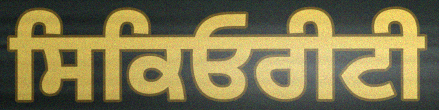
ਸਿਕਿਓਰੀਟੀ